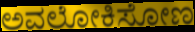
ಅವಲೋಕಿಸೋಣ